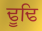
ਢੂਢਿ